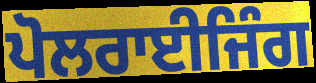
ਪੋਲਰਾਈਜਿੰਗ